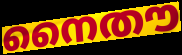
നൈതൗ